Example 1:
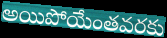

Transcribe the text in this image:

అయిపోయేంతవరకు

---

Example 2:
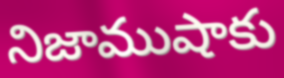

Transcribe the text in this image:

నిజాముషాకు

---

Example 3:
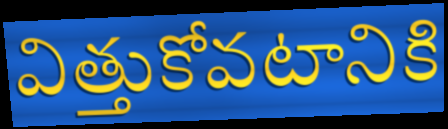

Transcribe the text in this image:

విత్తుకోవటానికి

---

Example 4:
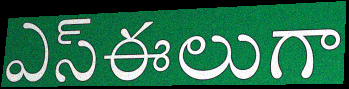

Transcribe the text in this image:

ఎస్ఈలుగా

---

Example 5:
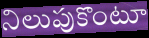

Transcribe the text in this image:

నిలుపుకొంటూ